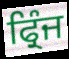
ਫ੍ਰਿੰਜ